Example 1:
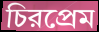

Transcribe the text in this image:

চিরপ্রেম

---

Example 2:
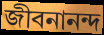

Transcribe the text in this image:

জীবনানন্দ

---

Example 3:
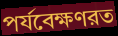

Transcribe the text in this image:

পর্যবেক্ষণরত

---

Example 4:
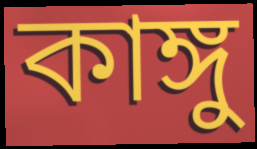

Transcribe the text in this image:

কাঙ্গু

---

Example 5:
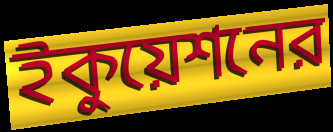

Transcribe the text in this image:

ইকুয়েশনের